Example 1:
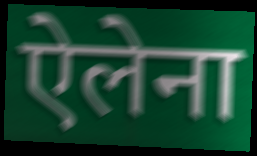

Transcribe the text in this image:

ऐलेना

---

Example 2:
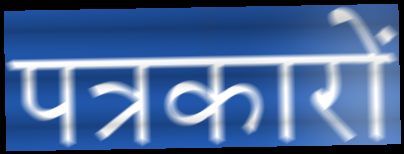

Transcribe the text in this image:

पत्रकारों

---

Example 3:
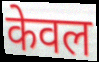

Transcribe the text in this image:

केवल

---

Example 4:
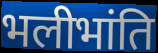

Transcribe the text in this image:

भलीभांति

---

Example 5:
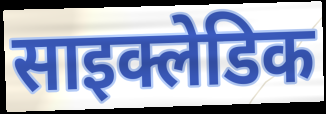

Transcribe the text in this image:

साइक्लेडिक